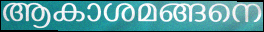
ആകാശമങ്ങനെ